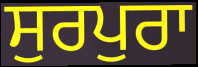
ਸੁਰਪੁਰਾ